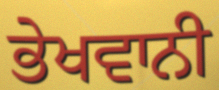
ਭੇਖਵਾਨੀ